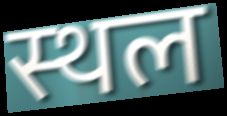
स्थल